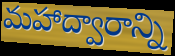
మహాద్వారాన్ని